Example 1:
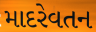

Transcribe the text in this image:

માદરેવતન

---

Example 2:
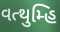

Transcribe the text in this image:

વત્થુમ્હિ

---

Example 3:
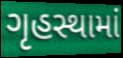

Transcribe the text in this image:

ગૃહસ્થામાં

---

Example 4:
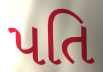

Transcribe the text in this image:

પતિ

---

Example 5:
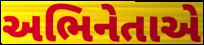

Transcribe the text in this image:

અભિનેતાએ